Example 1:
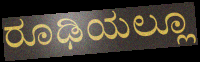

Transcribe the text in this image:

ರೂಢಿಯಲ್ಲೂ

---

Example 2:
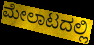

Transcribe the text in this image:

ಮೇಲಾಟದಲ್ಲಿ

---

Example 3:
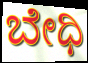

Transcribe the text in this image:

ಬೇಧಿ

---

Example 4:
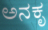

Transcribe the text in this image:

ಅನಕೃ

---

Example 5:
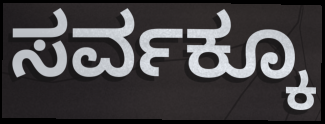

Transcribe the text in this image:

ಸರ್ವಕ್ಕೂ